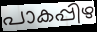
പാകപ്പിഴ